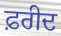
ਫ਼ਰੀਦ